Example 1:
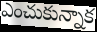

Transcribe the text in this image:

ఎంచుకున్నాక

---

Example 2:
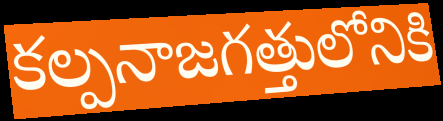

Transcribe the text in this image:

కల్పనాజగత్తులోనికి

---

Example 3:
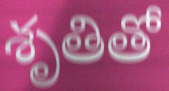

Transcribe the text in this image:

శృతితో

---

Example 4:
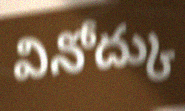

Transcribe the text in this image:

వినోద్కు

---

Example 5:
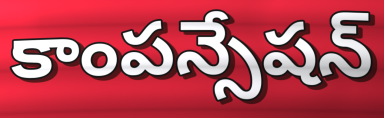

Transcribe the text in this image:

కాంపన్సేషన్